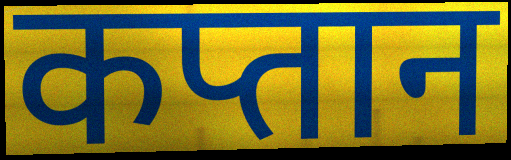
कप्तान